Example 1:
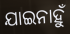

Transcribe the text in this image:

ଯାଇନାହୁଁ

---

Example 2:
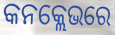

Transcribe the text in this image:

କନକ୍ଲେଭରେ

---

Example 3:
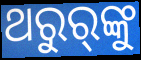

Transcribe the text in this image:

ଥରୁର୍‌ଙ୍କୁ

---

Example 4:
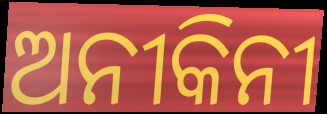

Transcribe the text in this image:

ଅନୀକିନୀ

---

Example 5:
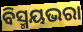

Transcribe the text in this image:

ବିସ୍ମୟଭରା